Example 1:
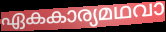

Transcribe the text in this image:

ഏകകാര്യമഥവാ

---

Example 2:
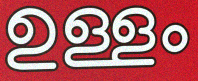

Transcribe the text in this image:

ഉള്ളം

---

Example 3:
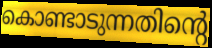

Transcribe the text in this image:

കൊണ്ടാടുന്നതിന്റെ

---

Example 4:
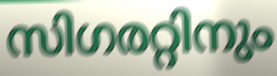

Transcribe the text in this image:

സിഗരറ്റിനും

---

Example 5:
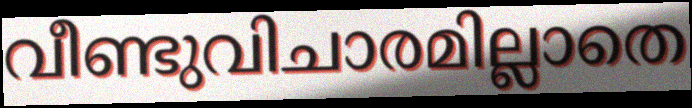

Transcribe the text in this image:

വീണ്ടുവിചാരമില്ലാതെ